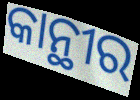
କାନ୍ଥୀର